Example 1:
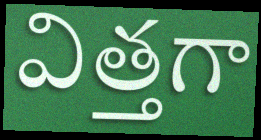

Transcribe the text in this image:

విత్తగా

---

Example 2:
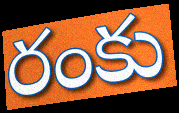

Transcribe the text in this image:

రంకు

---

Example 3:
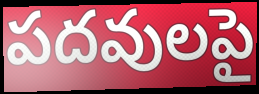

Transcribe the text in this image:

పదవులపై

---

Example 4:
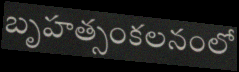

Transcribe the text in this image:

బృహత్సంకలనంలో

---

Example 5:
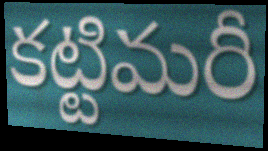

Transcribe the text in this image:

కట్టిమరీ